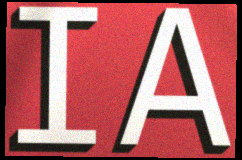
IA